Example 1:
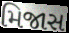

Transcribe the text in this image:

મિજાસ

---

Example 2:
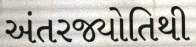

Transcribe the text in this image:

અંતરજ્યોતિથી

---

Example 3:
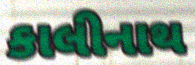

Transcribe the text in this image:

કાલીનાથ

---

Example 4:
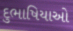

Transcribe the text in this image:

દુભાષિયાઓ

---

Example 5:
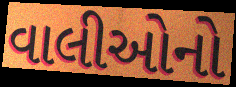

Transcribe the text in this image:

વાલીઓનો